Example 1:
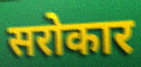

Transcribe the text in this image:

सरोकार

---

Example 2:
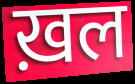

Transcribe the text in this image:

ख़ल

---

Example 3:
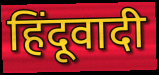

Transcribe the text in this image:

हिंदूवादी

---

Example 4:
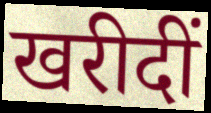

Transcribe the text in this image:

खरीदीं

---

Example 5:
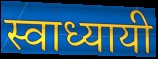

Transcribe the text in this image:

स्वाध्यायी